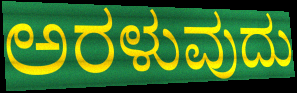
ಅರಳುವುದು